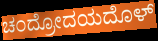
ಚಂದ್ರೋದಯದೊಳ್